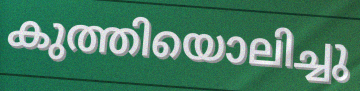
കുത്തിയൊലിച്ചു